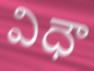
విధౌ